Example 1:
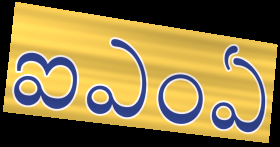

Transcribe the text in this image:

ఐఎంఏ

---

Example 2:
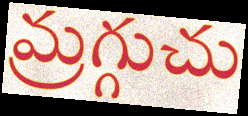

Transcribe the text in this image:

మ్రగ్గుచు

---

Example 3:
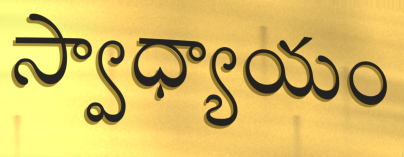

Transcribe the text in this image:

స్వాధ్యాయం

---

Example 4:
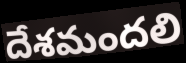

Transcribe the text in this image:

దేశమందలి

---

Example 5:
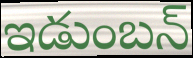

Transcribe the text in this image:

ఇడుంబన్